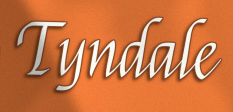
Tyndale